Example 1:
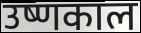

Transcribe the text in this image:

उष्णकाल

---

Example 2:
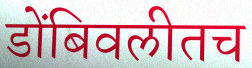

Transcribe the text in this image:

डोंबिवलीतच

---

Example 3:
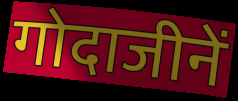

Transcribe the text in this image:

गोदाजीनें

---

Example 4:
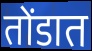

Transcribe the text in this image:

तोंडात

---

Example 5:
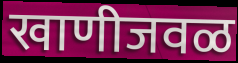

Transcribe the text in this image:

खाणीजवळ